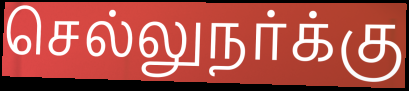
செல்லுநர்க்கு